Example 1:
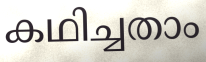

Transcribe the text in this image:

കഥിച്ചതാം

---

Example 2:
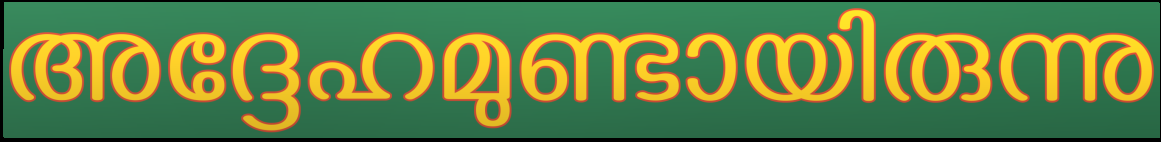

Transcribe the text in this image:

അദ്ദേഹമുണ്ടായിരുന്നു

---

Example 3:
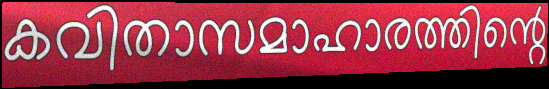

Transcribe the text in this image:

കവിതാസമാഹാരത്തിന്റെ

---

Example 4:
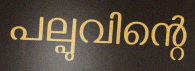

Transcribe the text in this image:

പല്പുവിന്റെ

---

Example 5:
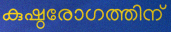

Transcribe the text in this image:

കുഷ്ഠരോഗത്തിന്